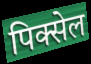
पिक्सेल